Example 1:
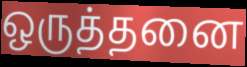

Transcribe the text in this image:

ஒருத்தனை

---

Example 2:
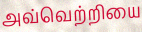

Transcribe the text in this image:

அவ்வெற்றியை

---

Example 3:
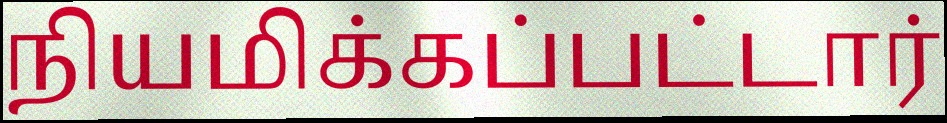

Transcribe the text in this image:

நியமிக்கப்பட்டார்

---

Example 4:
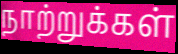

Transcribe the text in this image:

நாற்றுக்கள்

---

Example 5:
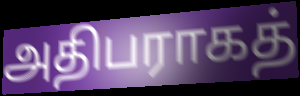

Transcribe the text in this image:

அதிபராகத்